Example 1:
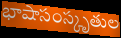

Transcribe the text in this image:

భాషాసంస్కృతుల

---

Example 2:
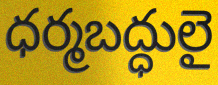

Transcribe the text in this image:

ధర్మబద్ధులై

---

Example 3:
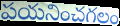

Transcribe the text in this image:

పయనించగలం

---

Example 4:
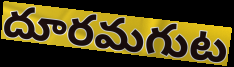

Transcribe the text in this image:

దూరమగుట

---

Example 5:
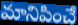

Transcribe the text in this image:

మానిపించే